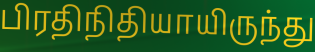
பிரதிநிதியாயிருந்து